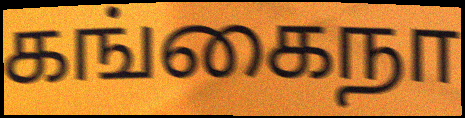
கங்கைநா